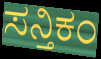
ಸನ್ತಿಕಂ